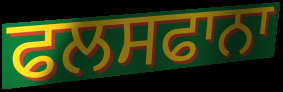
ਫਲਸਫਾਨਾ